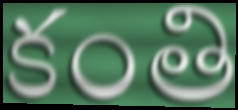
కంతి